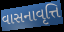
વાસનાવૃત્તિ